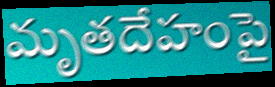
మృతదేహంపై